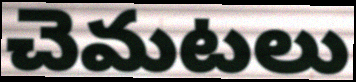
చెమటలు